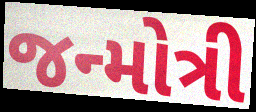
જન્મોત્રી